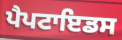
ਪੈਪਟਾਇਡਸ